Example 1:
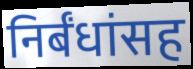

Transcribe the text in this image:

निर्बंधांसह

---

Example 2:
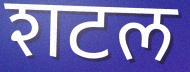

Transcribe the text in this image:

शटल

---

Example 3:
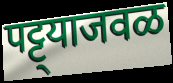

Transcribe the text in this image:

पट्ट्याजवळ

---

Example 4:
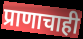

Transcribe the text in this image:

प्राणाचाही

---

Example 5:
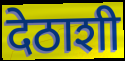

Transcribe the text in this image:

देठाशी